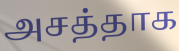
அசத்தாக